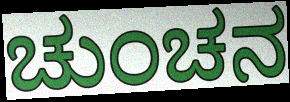
ಚುಂಚನ